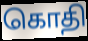
கொதி